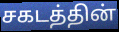
சகடத்தின்